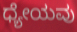
ಧ್ಯೇಯವು